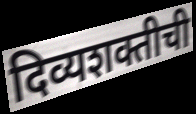
दिव्यशक्तीची